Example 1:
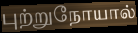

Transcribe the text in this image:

புற்றுநோயால்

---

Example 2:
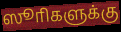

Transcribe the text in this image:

ஸூரிகளுக்கு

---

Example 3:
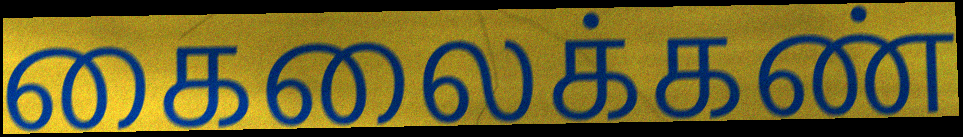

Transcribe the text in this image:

கைலைக்கண்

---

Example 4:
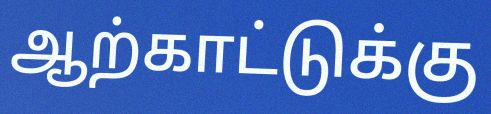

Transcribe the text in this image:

ஆற்காட்டுக்கு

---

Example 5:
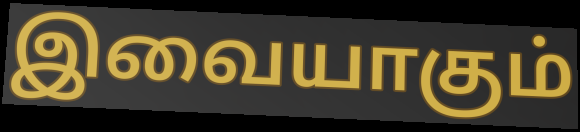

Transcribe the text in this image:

இவையாகும்